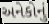
અનેકોનું